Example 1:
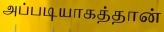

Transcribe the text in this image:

அப்படியாகத்தான்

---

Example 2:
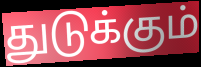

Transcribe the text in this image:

துடுக்கும்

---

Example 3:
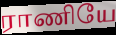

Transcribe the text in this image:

ராணியே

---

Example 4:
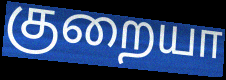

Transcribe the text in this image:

குறையா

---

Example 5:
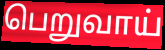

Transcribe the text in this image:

பெறுவாய்